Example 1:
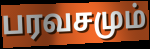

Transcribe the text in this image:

பரவசமும்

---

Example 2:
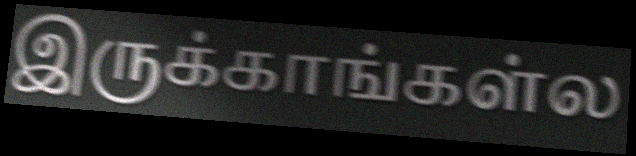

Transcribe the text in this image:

இருக்காங்கள்ல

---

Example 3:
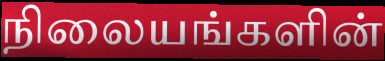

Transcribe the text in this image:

நிலையங்களின்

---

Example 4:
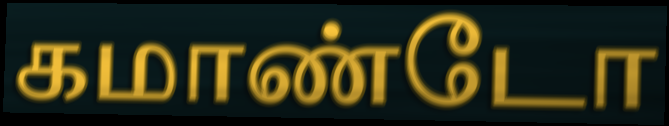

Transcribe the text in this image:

கமாண்டோ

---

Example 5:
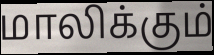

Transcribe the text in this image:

மாலிக்கும்